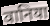
वानिया